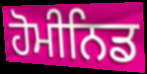
ਹੋਮੀਨਿਡ